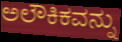
ಅಲೌಕಿಕವನ್ನು